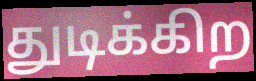
துடிக்கிற